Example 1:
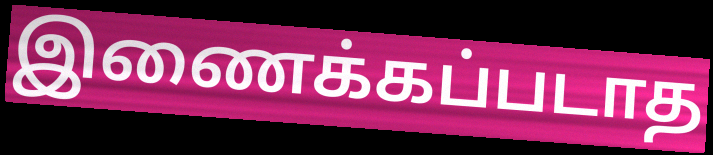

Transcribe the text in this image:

இணைக்கப்படாத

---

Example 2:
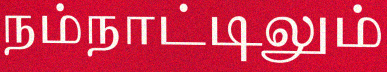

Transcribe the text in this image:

நம்நாட்டிலும்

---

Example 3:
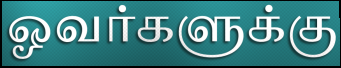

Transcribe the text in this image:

ஓவர்களுக்கு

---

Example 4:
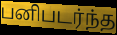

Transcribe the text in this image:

பனிபடர்ந்த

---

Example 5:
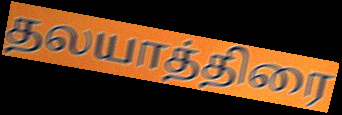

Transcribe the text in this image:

தலயாத்திரை